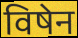
विषेन